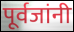
पूर्वजांनी